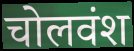
चोलवंश